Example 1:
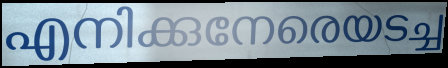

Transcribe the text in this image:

എനിക്കുനേരെയടച്ച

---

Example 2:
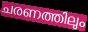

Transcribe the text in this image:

ചരണത്തിലും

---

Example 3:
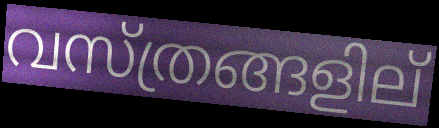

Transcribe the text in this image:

വസ്ത്രങ്ങളില്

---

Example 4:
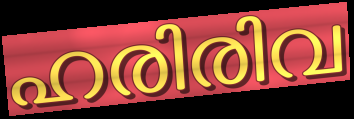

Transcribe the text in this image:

ഹരിരിവ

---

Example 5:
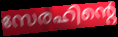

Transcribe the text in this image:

സേരഹിന്റെ